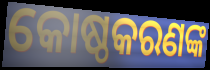
କୋଷ୍ଠକରଣଙ୍କ